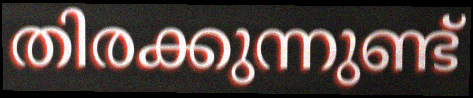
തിരക്കുന്നുണ്ട്